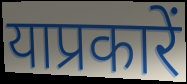
याप्रकारें